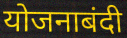
योजनाबंदी